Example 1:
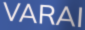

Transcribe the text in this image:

VARAI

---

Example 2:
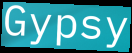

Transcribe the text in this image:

Gypsy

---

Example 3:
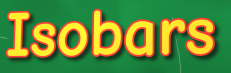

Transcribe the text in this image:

Isobars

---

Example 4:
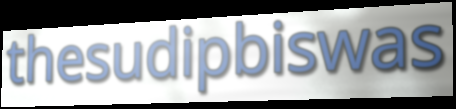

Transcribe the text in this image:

thesudipbiswas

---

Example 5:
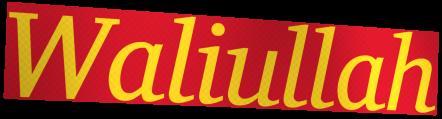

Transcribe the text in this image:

Waliullah